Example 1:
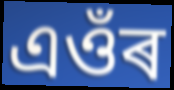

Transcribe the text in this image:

এওঁৰ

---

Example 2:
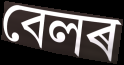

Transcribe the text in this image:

বেলৰ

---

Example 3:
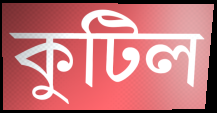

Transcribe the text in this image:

কুটিল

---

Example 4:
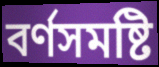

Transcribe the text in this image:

বৰ্ণসমষ্টি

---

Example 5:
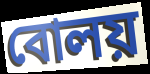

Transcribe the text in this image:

বোলয়